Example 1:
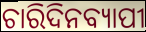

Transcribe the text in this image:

ଚାରିଦିନବ୍ୟାପୀ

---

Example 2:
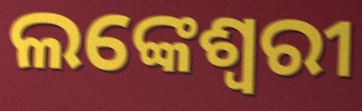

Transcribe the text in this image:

ଲଙ୍କେଶ୍ଵରୀ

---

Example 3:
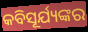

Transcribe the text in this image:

କବିସୂର୍ଯ୍ୟଙ୍କର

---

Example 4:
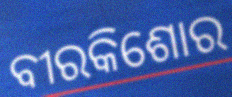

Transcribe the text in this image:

ବୀରକିଶୋର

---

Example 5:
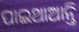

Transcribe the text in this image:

ପାଇଥାଆନ୍ତି